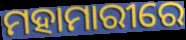
ମହାମାରୀରେ